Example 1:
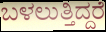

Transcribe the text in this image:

ಬಳಲುತ್ತಿದ್ದರೆ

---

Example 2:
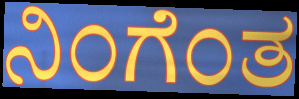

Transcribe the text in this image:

ನಿಂಗೆಂತ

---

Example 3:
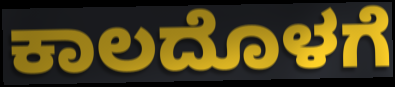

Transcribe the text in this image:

ಕಾಲದೊಳಗೆ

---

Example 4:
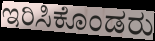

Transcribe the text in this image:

ಇರಿಸಿಕೊಂಡರು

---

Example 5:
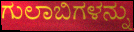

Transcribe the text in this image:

ಗುಲಾಬಿಗಳನ್ನು